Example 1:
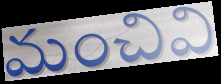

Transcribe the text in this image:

మంచివి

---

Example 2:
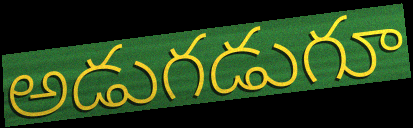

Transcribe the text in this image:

అడుగడుగూ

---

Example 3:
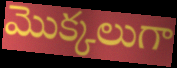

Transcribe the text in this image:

మొక్కలుగా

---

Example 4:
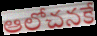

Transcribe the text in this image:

ఆలోచనకే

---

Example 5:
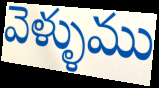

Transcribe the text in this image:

వెళ్ళుము